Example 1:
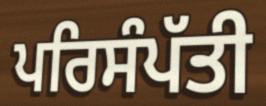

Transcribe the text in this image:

ਪਰਿਸੰਪੱਤੀ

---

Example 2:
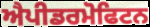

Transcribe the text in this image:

ਐਪੀਡਰਮੋਫਿਟਨ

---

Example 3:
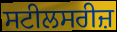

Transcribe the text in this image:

ਸਟੀਲਸਰੀਜ਼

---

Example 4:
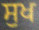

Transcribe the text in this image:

ਸੁਖ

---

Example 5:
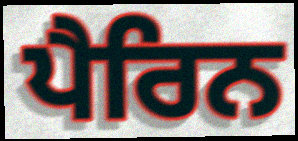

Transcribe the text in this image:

ਪੈਰਿਨ